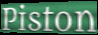
Piston